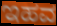
ಇಹವ